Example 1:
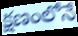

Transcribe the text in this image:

క్షణంలోనే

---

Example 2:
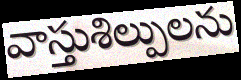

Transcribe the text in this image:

వాస్తుశిల్పులను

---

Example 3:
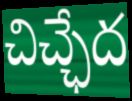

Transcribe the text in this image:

చిచ్ఛేద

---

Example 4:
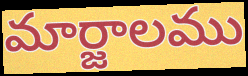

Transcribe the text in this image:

మార్జాలము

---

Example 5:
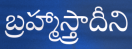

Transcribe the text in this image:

బ్రహ్మాస్త్రాదీని